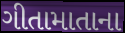
ગીતામાતાના